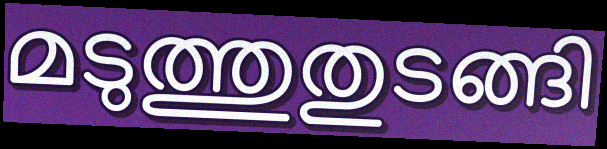
മടുത്തുതുടങ്ങി